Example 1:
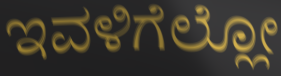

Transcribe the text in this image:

ಇವಳಿಗೆಲ್ಲೋ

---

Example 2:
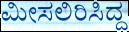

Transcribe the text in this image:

ಮೀಸಲಿರಿಸಿದ್ದ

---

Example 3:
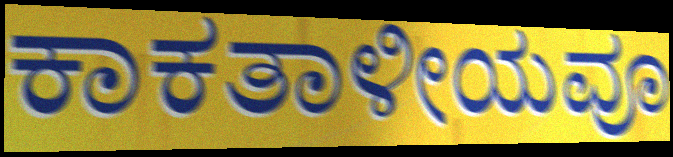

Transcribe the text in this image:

ಕಾಕತಾಳೀಯವೂ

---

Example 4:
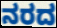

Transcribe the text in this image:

ನರದ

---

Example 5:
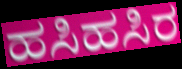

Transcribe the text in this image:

ಹಸಿಹಸಿರ